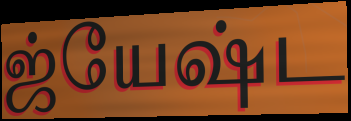
ஜ்யேஷ்ட